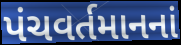
પંચવર્તમાનનાં